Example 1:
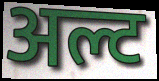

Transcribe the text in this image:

अल्ट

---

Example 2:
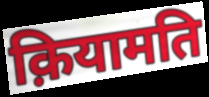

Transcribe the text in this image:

क़ियामति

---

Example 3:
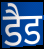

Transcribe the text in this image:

डैड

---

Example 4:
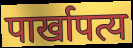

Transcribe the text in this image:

पार्खापत्य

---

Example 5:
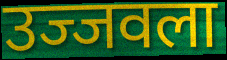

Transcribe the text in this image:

उज्‍जवला